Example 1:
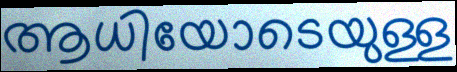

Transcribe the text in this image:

ആധിയോടെയുള്ള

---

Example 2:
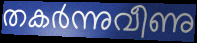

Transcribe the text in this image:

തകർന്നുവീണു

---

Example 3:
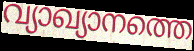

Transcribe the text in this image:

വ്യാഖ്യാനത്തെ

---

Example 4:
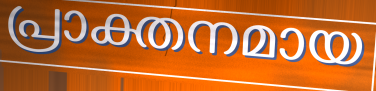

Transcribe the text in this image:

പ്രാക്തനമായ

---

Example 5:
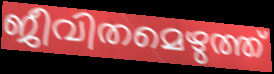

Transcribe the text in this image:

ജീവിതമെഴുത്ത്